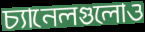
চ্যানেলগুলোও